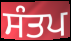
ਸੰਤਪ